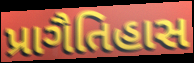
પ્રાગૈતિહાસ